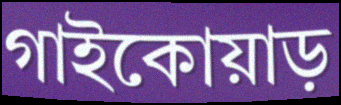
গাইকোয়াড়